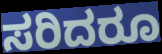
ಸರಿದರೂ